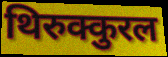
थिरुक्कुरल